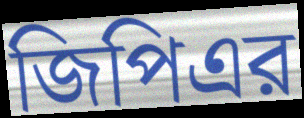
জিপিএর